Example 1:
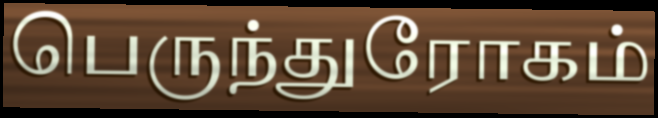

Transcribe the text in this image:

பெருந்துரோகம்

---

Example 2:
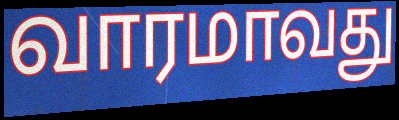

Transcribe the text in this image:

வாரமாவது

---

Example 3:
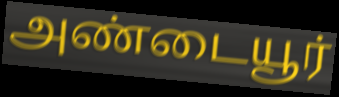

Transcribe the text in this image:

அண்டையூர்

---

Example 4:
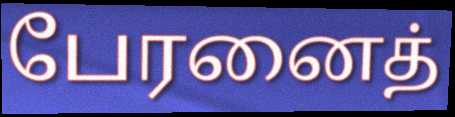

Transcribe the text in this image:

பேரனைத்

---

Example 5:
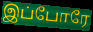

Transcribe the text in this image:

இப்போரே